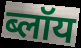
ब्लॉय